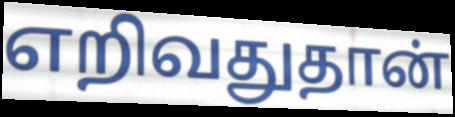
எறிவதுதான்